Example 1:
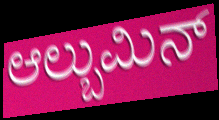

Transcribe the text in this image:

ಆಲ್ಬುಮಿನ್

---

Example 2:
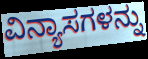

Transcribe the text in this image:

ವಿನ್ಯಾಸಗಳನ್ನು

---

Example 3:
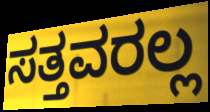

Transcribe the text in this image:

ಸತ್ತವರಲ್ಲ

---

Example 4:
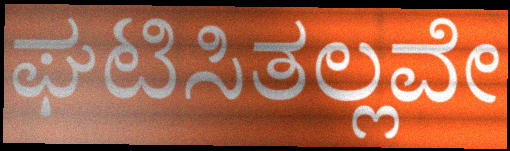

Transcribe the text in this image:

ಘಟಿಸಿತಲ್ಲವೇ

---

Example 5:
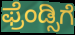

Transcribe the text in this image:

ಫ್ರೆಂಡ್ಸಿಗೆ